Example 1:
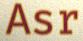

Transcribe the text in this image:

Asr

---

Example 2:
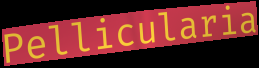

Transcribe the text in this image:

Pellicularia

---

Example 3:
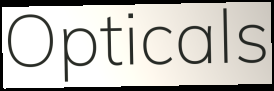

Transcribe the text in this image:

Opticals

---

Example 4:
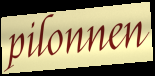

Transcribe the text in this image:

pilonnen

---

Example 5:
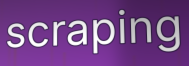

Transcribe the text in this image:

scraping